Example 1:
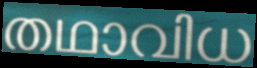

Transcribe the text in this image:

തഥാവിധ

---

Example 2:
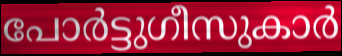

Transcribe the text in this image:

പോർട്ടുഗീസുകാർ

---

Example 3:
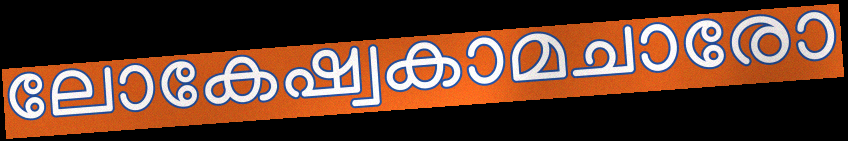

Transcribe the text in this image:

ലോകേഷ്വകാമചാരോ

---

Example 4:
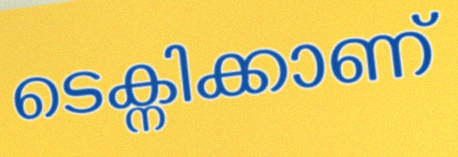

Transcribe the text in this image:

ടെക്നിക്കാണ്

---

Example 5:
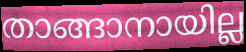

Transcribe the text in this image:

താങ്ങാനായില്ല